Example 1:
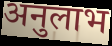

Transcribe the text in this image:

अनुलाभ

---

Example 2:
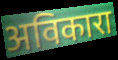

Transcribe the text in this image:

अविकारा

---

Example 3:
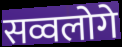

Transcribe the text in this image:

सव्वलोगे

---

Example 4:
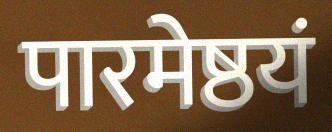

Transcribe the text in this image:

पारमेष्ठयं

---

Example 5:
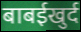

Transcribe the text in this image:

बाबईखुर्द